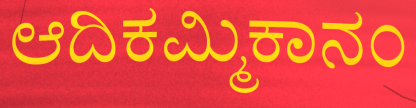
ಆದಿಕಮ್ಮಿಕಾನಂ